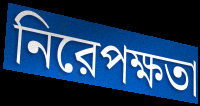
নিরেপক্ষতা